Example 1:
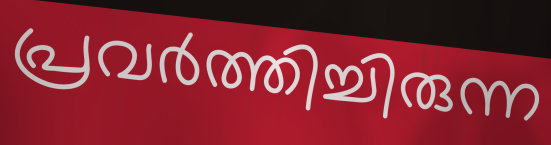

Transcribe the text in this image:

പ്രവർത്തിച്ചിരുന്ന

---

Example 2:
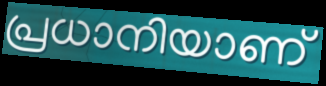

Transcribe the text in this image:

പ്രധാനിയാണ്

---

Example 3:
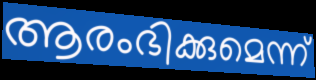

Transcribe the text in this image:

ആരംഭിക്കുമെന്ന്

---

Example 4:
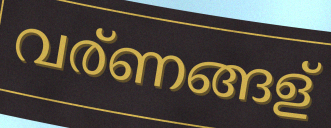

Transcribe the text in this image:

വര്ണങ്ങള്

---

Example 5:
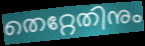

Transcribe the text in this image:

തെറ്റേതിനും